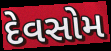
દેવસોમ